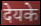
देयके